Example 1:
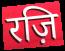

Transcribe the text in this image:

रज़ि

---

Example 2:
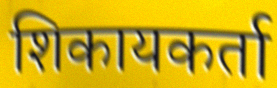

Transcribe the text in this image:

शिकायकर्ता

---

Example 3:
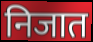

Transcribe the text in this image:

निजात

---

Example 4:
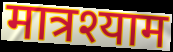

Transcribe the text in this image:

मात्रश्याम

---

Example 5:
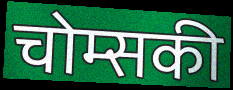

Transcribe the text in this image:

चोम्सकी